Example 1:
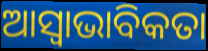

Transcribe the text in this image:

ଆସ୍ବାଭାବିକତା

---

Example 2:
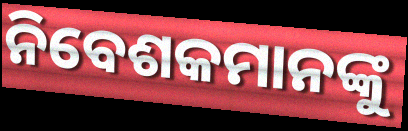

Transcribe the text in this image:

ନିବେଶକମାନଙ୍କୁ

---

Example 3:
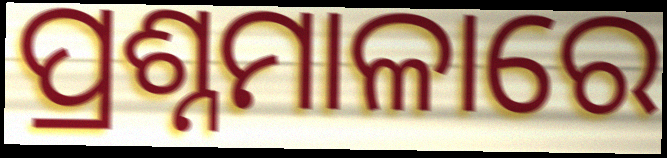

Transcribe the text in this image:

ପ୍ରଶ୍ନମାଳାରେ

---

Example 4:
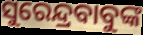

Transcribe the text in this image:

ସୁରେନ୍ଦ୍ରବାବୁଙ୍କ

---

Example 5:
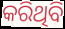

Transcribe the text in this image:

କରିଥିବି